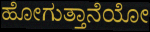
ಹೋಗುತ್ತಾನೆಯೋ